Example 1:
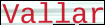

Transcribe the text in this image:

Vallar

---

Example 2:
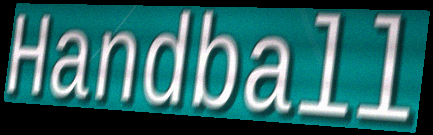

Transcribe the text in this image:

Handball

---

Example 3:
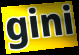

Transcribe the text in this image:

gini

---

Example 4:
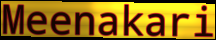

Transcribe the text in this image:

Meenakari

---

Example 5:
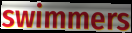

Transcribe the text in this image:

swimmers